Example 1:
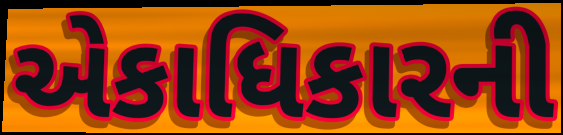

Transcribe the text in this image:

એકાધિકારની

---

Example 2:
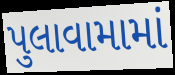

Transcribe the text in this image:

પુલાવામામાં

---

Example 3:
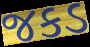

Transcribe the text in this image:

જકડ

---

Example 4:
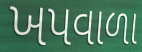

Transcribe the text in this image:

ખપવાળા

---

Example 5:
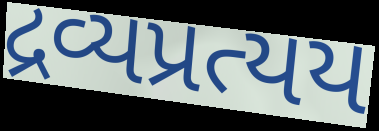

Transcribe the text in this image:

દ્રવ્યપ્રત્યય